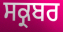
ਸਕ੍ਰਬਰ